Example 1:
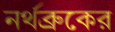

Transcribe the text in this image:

নর্থব্রুকের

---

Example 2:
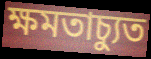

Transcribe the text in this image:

ক্ষমতাচ্যুত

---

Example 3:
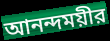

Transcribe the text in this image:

আনন্দময়ীর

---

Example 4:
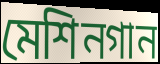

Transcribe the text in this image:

মেশিনগান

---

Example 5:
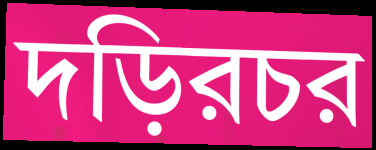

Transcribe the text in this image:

দড়িরচর